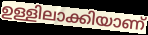
ഉള്ളിലാക്കിയാണ്